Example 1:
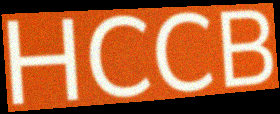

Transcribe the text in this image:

HCCB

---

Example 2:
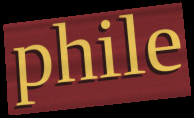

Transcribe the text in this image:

phile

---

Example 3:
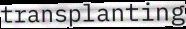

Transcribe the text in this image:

transplanting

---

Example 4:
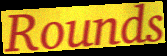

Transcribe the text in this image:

Rounds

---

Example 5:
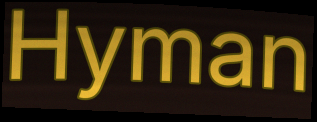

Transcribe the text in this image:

Hyman